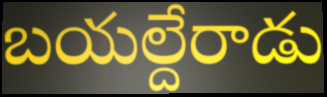
బయల్దేరాడు